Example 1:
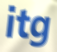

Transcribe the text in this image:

itg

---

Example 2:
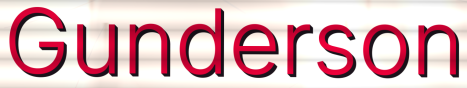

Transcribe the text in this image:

Gunderson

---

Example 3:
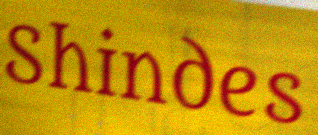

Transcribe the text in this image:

Shindes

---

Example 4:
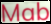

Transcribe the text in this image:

Mab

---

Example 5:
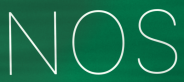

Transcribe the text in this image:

NOS